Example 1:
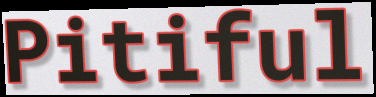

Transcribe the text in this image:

Pitiful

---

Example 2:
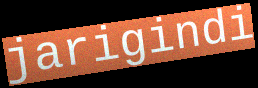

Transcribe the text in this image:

jarigindi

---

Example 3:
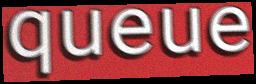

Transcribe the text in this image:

queue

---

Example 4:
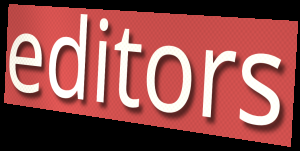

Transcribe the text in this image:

editors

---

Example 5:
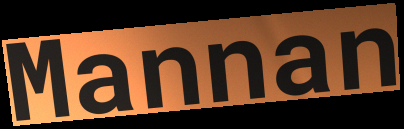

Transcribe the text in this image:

Mannan